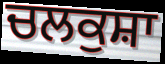
ਚਲਕੁਸ਼ਾ